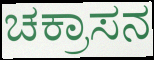
ಚಕ್ರಾಸನ